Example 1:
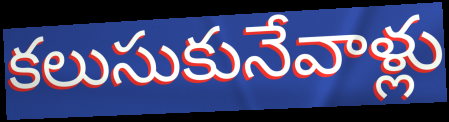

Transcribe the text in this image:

కలుసుకునేవాళ్లు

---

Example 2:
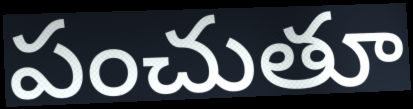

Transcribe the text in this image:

పంచుతూ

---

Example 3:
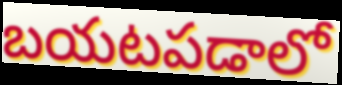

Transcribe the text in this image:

బయటపడాలో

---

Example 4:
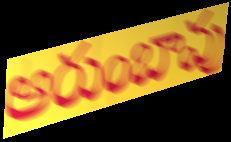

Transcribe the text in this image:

ఆరుంబావు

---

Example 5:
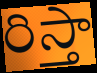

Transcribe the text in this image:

రిస్తా